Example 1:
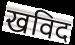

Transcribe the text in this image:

खविद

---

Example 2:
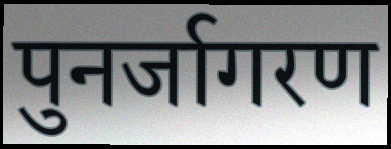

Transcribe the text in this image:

पुनर्जागरण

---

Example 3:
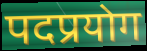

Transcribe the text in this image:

पदप्रयोग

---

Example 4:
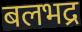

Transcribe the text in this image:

बलभद्र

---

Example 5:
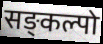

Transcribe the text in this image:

सङ्कल्पो